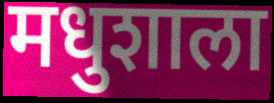
मधुशाला